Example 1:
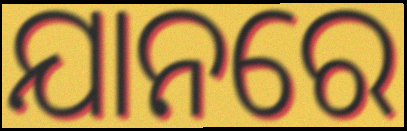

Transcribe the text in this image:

ଯାନରେ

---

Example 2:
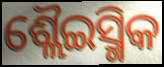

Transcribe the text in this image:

ଶ୍ଲୈଇସ୍ମିକ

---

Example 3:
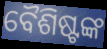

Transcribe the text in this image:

ବୈଶିଷ୍ଟଙ୍କ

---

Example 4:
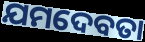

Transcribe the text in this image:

ଯମଦେବତା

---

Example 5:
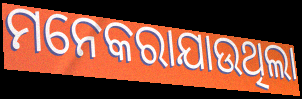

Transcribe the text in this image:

ମନେକରାଯାଉଥିଲା